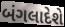
બંગલાદેશે